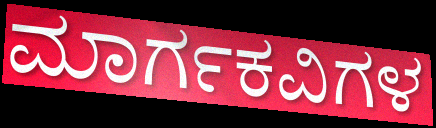
ಮಾರ್ಗಕವಿಗಳ